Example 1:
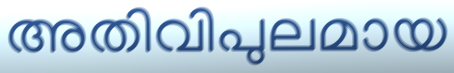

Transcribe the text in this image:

അതിവിപുലമായ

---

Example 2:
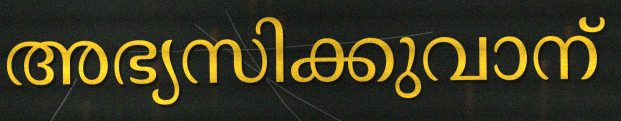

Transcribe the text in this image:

അഭ്യസിക്കുവാന്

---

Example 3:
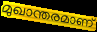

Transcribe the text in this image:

മുഖാന്തരമാണ്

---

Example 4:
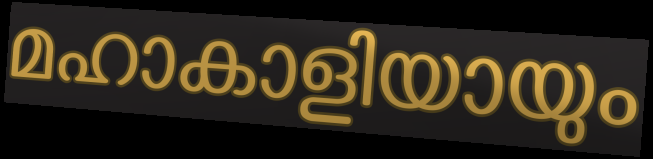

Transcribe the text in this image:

മഹാകാളിയായും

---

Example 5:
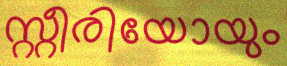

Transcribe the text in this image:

സ്റ്റീരിയോയും